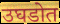
उघडोत